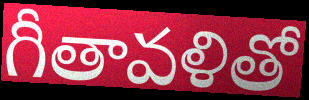
గీతావళితో